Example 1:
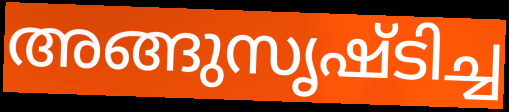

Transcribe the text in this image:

അങ്ങുസൃഷ്ടിച്ച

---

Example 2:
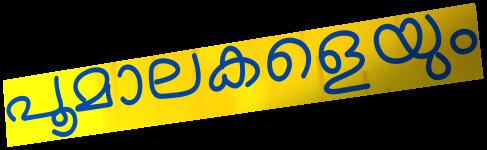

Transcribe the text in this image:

പൂമാലകളെയും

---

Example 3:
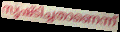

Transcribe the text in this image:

സൃഷ്ടിച്ചതാണെന്ന്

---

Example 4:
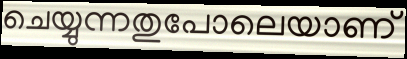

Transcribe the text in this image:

ചെയ്യുന്നതുപോലെയാണ്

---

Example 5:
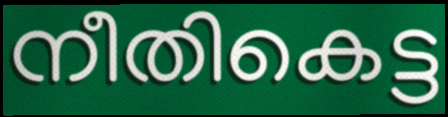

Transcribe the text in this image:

നീതികെട്ട